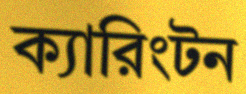
ক্যারিংটন